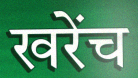
खरेंच